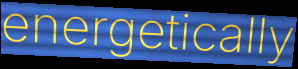
energetically